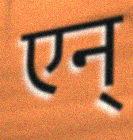
एन्